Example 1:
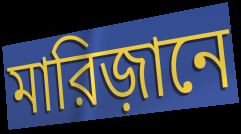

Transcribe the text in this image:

মারিজ়ানে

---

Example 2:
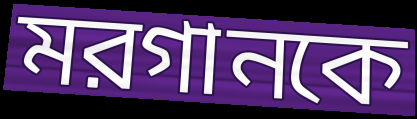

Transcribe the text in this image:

মরগানকে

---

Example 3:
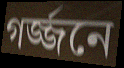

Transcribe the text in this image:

গর্জ্জনে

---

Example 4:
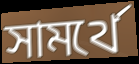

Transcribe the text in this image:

সামর্থে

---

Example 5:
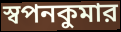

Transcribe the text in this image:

স্বপনকুমার